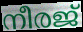
നീരജ്